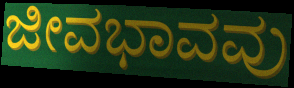
ಜೀವಭಾವವು